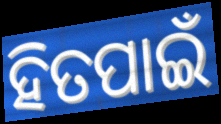
ହିତପାଇଁ